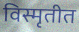
विस्मृतीत